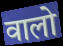
वालो